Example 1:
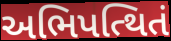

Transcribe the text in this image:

અભિપત્થિતં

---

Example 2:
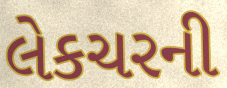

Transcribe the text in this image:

લેકચરની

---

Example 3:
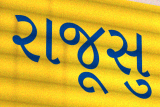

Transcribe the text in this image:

રાજૂસુ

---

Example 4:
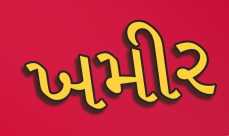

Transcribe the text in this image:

ખમીર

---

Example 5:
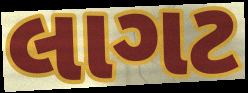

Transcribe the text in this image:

લાગટ